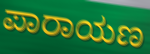
ಪಾರಾಯಣ